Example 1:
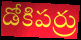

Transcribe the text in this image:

డోకిపర్రు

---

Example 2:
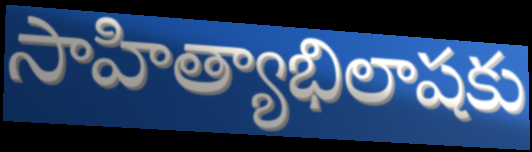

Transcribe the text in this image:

సాహిత్యాభిలాషకు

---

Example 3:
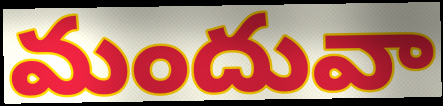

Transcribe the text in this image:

మందువా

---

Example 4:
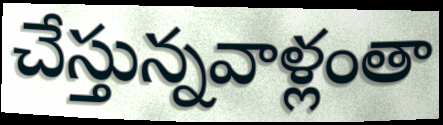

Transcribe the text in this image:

చేస్తున్నవాళ్లంతా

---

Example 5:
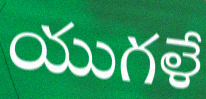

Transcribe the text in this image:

యుగళే